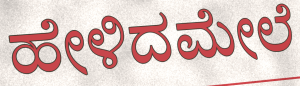
ಹೇಳಿದಮೇಲೆ